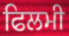
ਫਿਲਮੀ